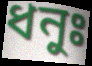
ধনুঃ